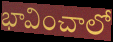
భావించాలో